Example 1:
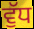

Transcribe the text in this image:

ਵੁੱਧ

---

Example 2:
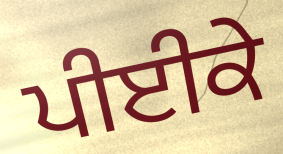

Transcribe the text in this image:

ਪੀਈਕੇ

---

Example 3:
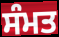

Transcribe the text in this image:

ਸੰਮਤ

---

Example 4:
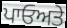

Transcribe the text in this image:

ਪਾਓਅਤੇ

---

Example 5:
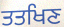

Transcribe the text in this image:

ਤਤਖਿਣ